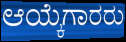
ಆಯ್ಕೆಗಾರರು